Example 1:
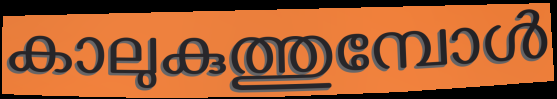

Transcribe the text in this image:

കാലുകുത്തുമ്പോൾ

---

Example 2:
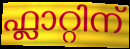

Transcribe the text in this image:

ഫ്ലാറ്റിന്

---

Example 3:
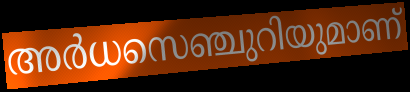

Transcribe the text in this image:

അർധസെഞ്ചുറിയുമാണ്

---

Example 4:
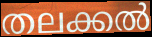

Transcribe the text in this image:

തലക്കൽ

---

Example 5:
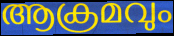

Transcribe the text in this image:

ആക്രമവും